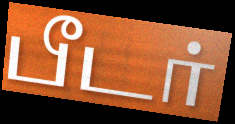
பீடர்